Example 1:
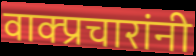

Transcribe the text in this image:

वाक्प्रचारांनी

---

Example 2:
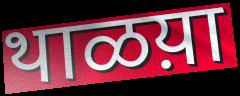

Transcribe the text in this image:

थाळय़ा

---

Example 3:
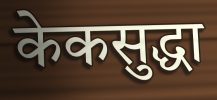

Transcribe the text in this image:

केकसुद्धा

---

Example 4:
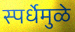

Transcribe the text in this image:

स्पर्धेमुळे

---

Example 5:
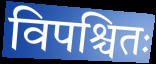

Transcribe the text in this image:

विपश्चितः